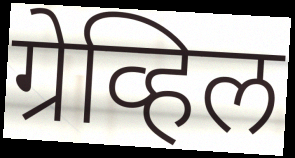
ग्रेव्हिल